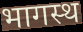
भागस्थ